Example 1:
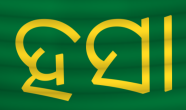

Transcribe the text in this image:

ହସା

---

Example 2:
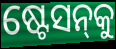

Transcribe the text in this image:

ଷ୍ଟେସନ୍‍କୁ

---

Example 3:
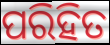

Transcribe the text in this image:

ପରିହିତ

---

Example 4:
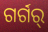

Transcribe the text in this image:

ଗର୍ଗର୍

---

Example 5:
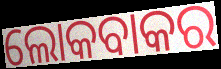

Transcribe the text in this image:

ଲୋକବାକର